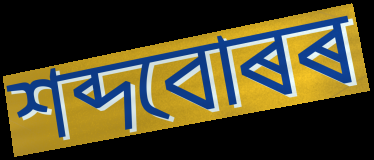
শব্দবোৰৰ